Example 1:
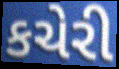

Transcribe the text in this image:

કચેરી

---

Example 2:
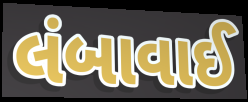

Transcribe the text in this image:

લંબાવાઈ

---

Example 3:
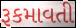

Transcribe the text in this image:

રૂકમાવતી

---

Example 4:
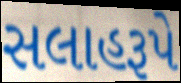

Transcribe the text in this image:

સલાહરૂપે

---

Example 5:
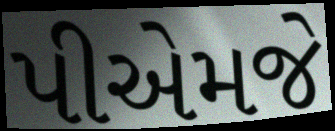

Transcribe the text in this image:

પીએમજે